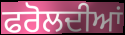
ਫਰੋਲਦੀਆਂ